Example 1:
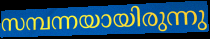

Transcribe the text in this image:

സമ്പന്നയായിരുന്നു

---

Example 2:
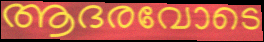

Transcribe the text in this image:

ആദരവോടെ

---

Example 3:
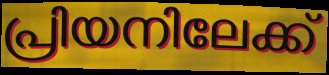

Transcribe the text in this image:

പ്രിയനിലേക്ക്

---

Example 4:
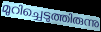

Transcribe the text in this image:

മുറിച്ചെടുത്തിരുന്നു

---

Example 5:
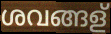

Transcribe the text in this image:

ശവങ്ങള്